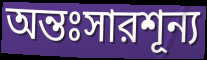
অন্তঃসারশূন্য